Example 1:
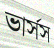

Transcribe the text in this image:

ভার্সস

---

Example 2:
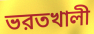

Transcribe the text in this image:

ভরতখালী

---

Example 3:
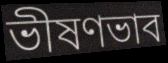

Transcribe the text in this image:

ভীষণভাব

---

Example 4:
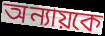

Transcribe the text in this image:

অন্যায়কে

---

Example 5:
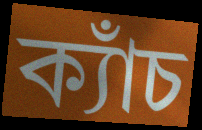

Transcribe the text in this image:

ক্যাঁচ